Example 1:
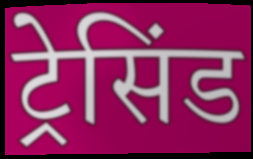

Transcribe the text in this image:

ट्रेसिंड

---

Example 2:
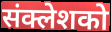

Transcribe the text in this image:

संक्लेशको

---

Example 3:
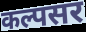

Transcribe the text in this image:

कल्पसर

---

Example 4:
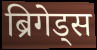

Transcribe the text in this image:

ब्रिगेड्स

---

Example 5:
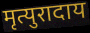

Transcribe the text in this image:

मृत्युरादाय